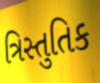
ત્રિસ્તુતિક